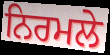
ਨਿਰਮਲੇ